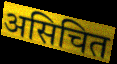
असिचित